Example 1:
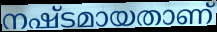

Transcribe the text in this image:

നഷ്ടമായതാണ്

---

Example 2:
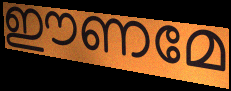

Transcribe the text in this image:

ഈണമേ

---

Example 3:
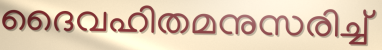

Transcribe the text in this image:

ദൈവഹിതമനുസരിച്ച്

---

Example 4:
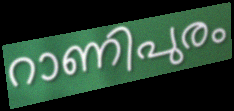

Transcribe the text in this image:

റാണിപുരം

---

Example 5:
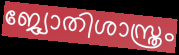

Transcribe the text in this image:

ജ്യോതിശാസ്ത്രം